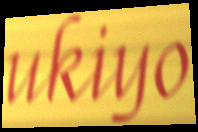
ukiyo